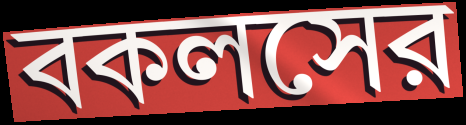
বকলসের